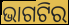
ଭାଗଟିର